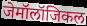
जेमॉलॉजिकल